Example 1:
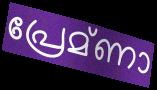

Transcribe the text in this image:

പ്രേമ്ണാ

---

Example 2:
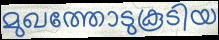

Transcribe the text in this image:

മുഖത്തോടുകൂടിയ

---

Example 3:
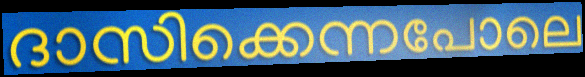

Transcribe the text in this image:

ദാസിക്കെന്നപോലെ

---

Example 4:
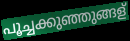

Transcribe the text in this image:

പൂച്ചക്കുഞ്ഞുങ്ങള്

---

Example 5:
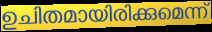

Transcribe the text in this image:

ഉചിതമായിരിക്കുമെന്ന്